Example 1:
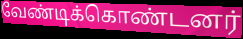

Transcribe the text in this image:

வேண்டிக்கொண்டனர்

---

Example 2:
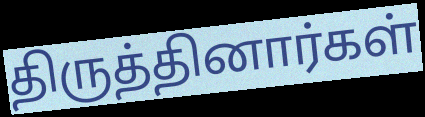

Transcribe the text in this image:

திருத்தினார்கள்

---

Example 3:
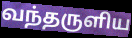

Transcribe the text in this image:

வந்தருளிய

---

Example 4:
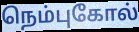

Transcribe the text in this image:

நெம்புகோல்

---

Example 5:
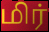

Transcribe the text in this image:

மிர்